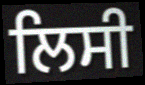
ਲਿਸੀ